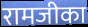
रामजीका